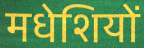
मधेशियों